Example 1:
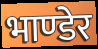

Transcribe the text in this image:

भाण्‍डेर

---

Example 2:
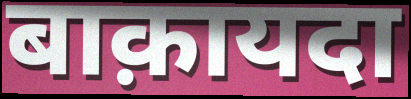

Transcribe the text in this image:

बाक़ायदा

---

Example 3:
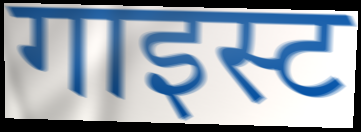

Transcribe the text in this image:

गाइस्ट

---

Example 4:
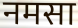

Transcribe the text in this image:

नमसा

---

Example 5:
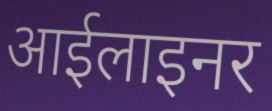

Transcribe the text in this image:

आईलाइनर